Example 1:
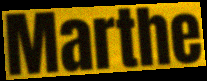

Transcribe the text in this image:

Marthe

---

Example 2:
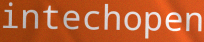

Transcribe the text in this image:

intechopen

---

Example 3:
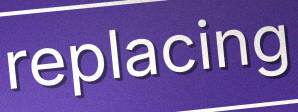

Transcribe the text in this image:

replacing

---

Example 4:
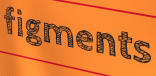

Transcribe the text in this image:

figments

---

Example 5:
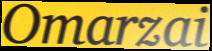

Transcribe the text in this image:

Omarzai